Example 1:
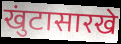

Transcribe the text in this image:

खुंटासारखे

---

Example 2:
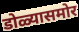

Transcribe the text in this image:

डोळ्यासमोर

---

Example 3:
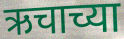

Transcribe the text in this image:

ऋचाच्या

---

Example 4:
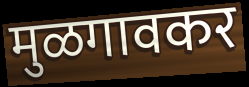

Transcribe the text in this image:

मुळगावकर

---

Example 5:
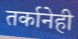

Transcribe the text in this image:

तर्कानेही